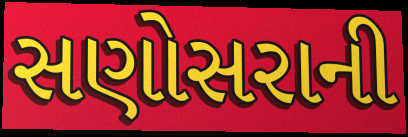
સણોસરાની